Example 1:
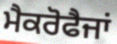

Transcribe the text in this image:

ਮੈਕਰੋਫੈਜਾਂ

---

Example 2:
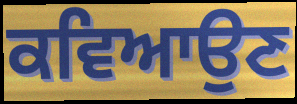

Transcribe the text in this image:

ਕਵਿਆਉਣ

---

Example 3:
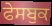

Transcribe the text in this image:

ਫੇਸਬੁਕ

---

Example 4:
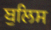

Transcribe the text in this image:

ਬੁਲਿਸ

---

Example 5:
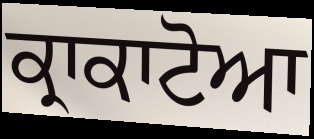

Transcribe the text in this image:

ਕ੍ਰਾਕਾਟੋਆ